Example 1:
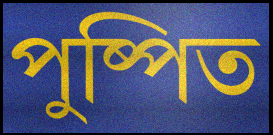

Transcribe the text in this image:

পুষ্পিত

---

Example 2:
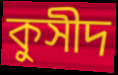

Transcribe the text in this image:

কুসীদ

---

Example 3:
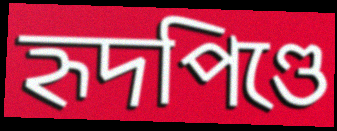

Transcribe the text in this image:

হৃদপিণ্ডে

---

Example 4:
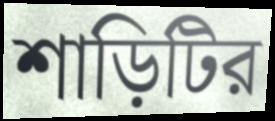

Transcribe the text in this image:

শাড়িটির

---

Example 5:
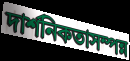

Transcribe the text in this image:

দার্শনিকতাসম্পন্ন